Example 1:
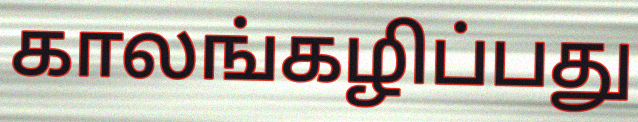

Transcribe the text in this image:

காலங்கழிப்பது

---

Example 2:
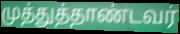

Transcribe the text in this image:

முத்துத்தாண்டவர்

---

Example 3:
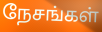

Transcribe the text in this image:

நேசங்கள்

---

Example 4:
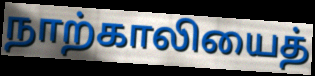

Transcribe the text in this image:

நாற்காலியைத்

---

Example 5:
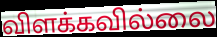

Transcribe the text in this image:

விளக்கவில்லை